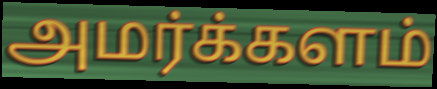
அமர்க்களம்